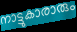
നാട്ടുകാരാരും